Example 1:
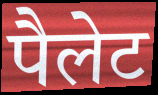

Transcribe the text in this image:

पैलेट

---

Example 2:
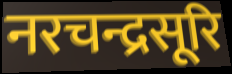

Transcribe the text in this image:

नरचन्द्रसूरि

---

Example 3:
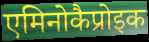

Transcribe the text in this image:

एमिनोकैप्रोइक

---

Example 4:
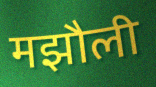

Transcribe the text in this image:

मझौली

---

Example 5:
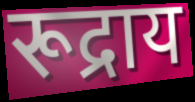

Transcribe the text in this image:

रूद्राय